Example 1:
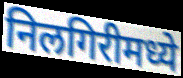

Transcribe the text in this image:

निलगिरीमध्ये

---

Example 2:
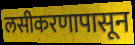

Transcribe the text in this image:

लसीकरणापासून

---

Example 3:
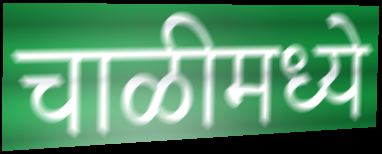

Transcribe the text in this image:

चाळीमध्ये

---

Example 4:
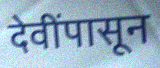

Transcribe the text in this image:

देवींपासून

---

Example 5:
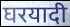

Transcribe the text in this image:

घरयादी